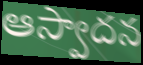
ఆస్వాదన